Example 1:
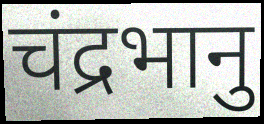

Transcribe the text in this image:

चंद्रभानु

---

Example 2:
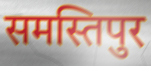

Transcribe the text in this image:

समस्तिपुर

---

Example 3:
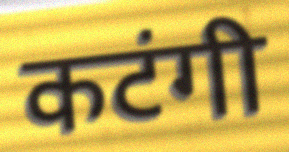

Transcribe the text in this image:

कटंगी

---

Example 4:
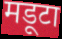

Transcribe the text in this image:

मडूटा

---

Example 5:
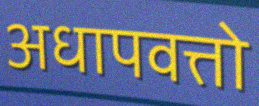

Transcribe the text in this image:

अधापवत्तो